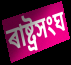
ৰাষ্ট্ৰসংঘ